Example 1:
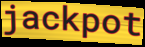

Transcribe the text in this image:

jackpot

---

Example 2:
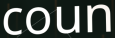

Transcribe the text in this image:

coun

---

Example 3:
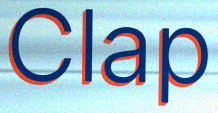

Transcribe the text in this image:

Clap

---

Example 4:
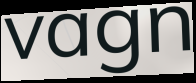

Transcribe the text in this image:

vagn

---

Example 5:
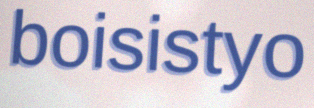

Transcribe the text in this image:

boisistyo